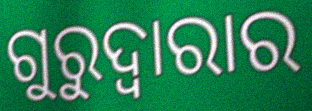
ଗୁରୁଦ୍ୱାରାର